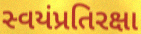
સ્વયંપ્રતિરક્ષા